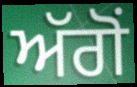
ਅੱਗੋਂ